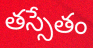
తస్సేతం